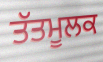
ਤੱਤਮੂਲਕ